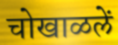
चोखाळलें